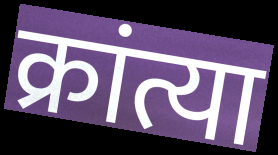
क्रांत्या